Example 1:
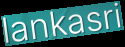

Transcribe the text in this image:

lankasri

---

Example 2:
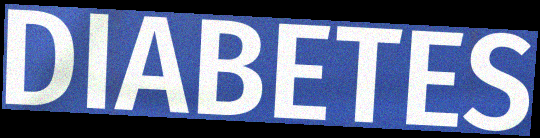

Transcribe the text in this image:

DIABETES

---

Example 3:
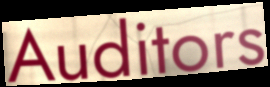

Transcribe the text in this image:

Auditors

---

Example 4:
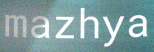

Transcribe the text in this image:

mazhya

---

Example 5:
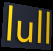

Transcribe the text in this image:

lull